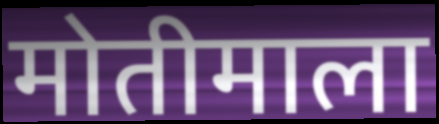
मोतीमाला